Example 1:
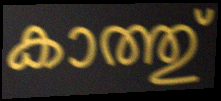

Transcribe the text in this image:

കാത്തു്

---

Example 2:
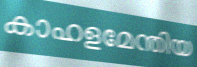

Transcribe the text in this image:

കാഹളമേന്തിയ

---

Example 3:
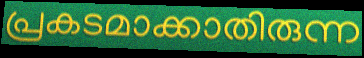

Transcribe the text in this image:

പ്രകടമാക്കാതിരുന്ന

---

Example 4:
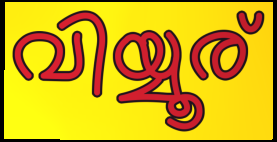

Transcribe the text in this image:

വിയ്യൂര്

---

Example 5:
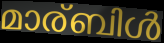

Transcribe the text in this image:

മാര്ബിൾ